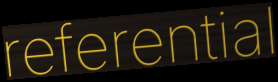
referential